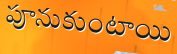
పూనుకుంటాయి